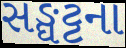
સઙ્ઘટ્ટના